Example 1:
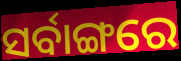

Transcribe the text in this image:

ସର୍ବାଙ୍ଗରେ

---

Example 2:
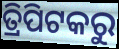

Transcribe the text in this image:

ତ୍ରିପିଟକରୁ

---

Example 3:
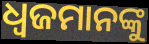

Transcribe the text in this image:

ଧ୍ୱଜମାନଙ୍କୁ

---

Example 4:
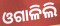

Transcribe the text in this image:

ଓଗାଳିଲି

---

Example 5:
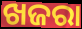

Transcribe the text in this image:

ଖଜରା